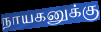
நாயகனுக்கு